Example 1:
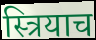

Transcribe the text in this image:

स्त्रियाच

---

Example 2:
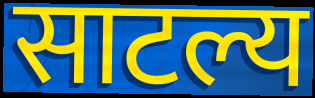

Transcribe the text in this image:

साटल्य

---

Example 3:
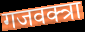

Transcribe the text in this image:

गजवक्त्रा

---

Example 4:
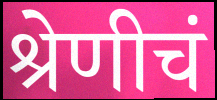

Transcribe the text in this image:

श्रेणीचं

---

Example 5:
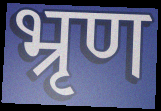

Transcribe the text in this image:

भ्रृण